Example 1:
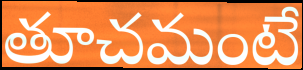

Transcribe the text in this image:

తూచమంటే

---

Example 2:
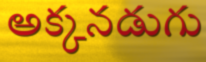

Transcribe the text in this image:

అక్కనడుగు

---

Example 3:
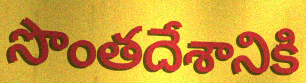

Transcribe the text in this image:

సొంతదేశానికి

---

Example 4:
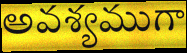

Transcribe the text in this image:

అవశ్యముగా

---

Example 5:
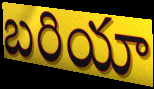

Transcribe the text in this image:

బరియా